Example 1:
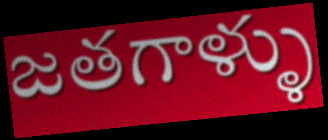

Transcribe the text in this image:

జతగాళ్ళు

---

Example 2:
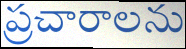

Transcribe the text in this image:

ప్రచారాలను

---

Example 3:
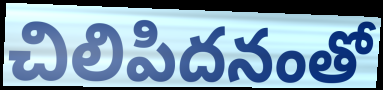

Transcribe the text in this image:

చిలిపిదనంతో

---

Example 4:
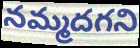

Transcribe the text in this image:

నమ్మదగని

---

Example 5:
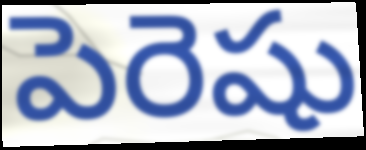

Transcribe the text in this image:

పెరెషు